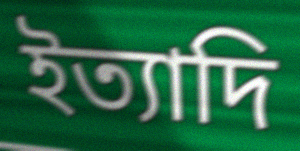
ইত্যাদি